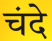
चंदे